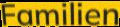
Familien